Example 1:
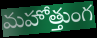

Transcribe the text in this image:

మహోత్తుంగ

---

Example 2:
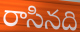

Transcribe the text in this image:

రాసినది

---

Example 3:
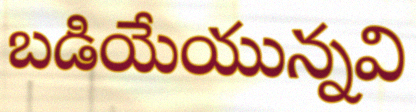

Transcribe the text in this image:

బడియేయున్నవి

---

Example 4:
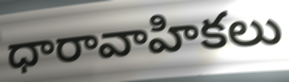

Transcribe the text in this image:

ధారావాహికలు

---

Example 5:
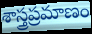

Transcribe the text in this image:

శాస్త్రప్రమాణం